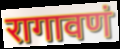
रागावणं